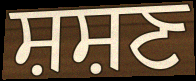
ਸ਼ਸ਼ਣ